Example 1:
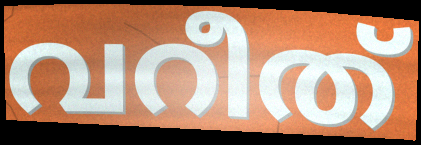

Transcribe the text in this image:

വറീത്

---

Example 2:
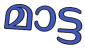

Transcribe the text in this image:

മാട്ട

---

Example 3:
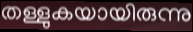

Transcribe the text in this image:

തള്ളുകയായിരുന്നു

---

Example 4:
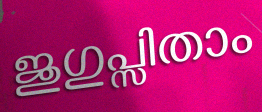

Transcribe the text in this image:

ജുഗുപ്സിതാം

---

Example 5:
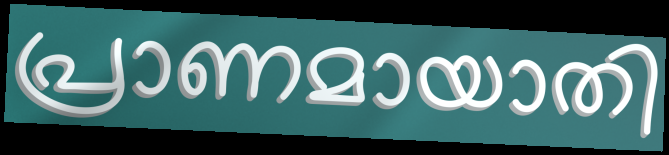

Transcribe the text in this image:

പ്രാണമായാതി